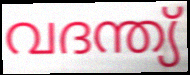
വദന്ത്യ്